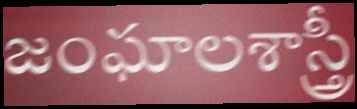
జంఘాలశాస్త్రీ